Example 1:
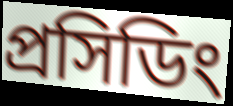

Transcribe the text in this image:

প্রসিডিং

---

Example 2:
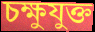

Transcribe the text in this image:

চক্ষুযুক্ত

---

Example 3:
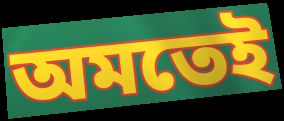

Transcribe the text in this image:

অমতেই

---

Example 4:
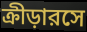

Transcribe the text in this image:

ক্রীড়ারসে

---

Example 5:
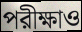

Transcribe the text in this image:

পরীক্ষাও